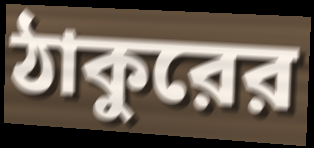
ঠাকুরের